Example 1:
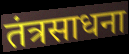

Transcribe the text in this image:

तंत्रसाधना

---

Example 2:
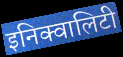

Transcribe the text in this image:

इनिक्वालिटी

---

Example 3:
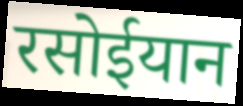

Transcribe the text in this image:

रसोईयान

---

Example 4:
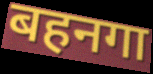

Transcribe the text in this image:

बहनगा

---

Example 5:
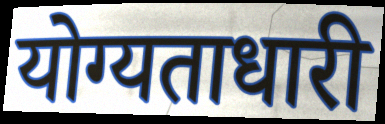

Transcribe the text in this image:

योग्यताधारी